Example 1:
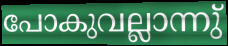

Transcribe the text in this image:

പോകുവല്ലാന്നു്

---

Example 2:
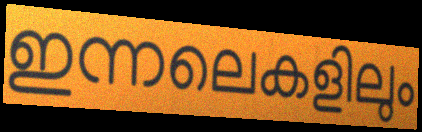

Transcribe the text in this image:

ഇന്നലെകളിലും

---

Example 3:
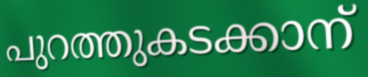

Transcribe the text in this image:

പുറത്തുകടക്കാന്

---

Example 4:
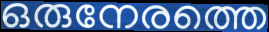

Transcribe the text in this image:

ഒരുനേരത്തെ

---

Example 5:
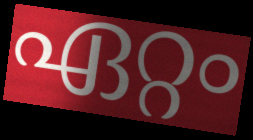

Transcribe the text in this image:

ഏറ്റം